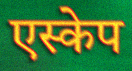
एस्केप